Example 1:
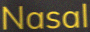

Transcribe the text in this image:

Nasal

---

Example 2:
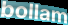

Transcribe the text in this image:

bollam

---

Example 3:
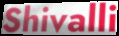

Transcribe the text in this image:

Shivalli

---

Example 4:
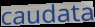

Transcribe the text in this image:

caudata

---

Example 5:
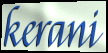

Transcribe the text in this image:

kerani